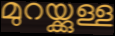
മുറയ്ക്കുള്ള